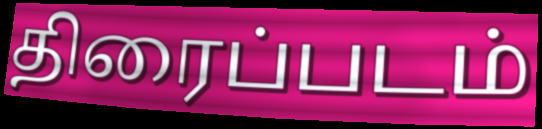
திரைப்படம்